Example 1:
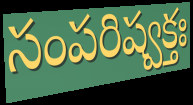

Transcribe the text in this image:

సంపరిష్వక్తః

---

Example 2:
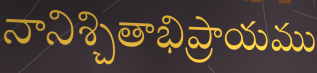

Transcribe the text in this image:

నానిశ్చితాభిప్రాయము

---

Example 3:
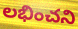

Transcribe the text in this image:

లభించని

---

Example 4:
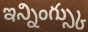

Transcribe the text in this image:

ఇన్నింగ్స్కు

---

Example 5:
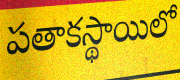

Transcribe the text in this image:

పతాకస్థాయిలో